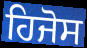
ਹਿਜੋਸ